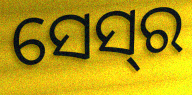
ସେସ୍‌ର